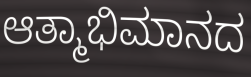
ಆತ್ಮಾಭಿಮಾನದ